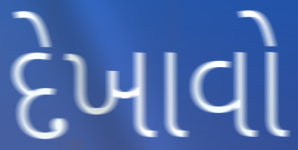
દેખાવો